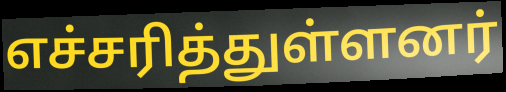
எச்சரித்துள்ளனர்